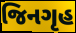
જિનગૃહ